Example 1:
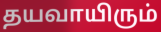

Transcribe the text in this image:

தயவாயிரும்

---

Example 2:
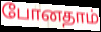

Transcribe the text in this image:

போனதாம்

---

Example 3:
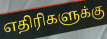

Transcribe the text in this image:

எதிரிகளுக்கு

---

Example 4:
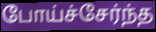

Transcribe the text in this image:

போய்ச்சேர்ந்த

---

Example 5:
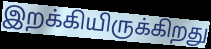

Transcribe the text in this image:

இறக்கியிருக்கிறது